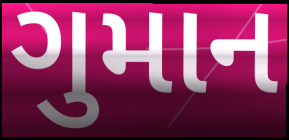
ગુમાન